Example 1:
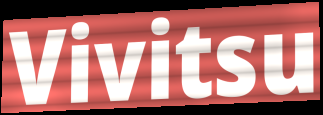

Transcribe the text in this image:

Vivitsu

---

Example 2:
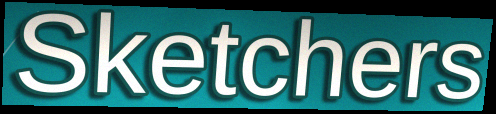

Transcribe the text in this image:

Sketchers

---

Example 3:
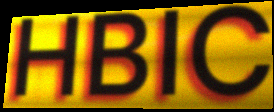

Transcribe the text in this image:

HBIC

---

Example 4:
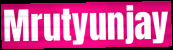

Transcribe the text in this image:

Mrutyunjay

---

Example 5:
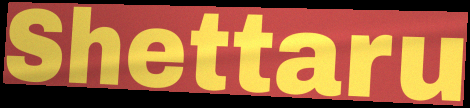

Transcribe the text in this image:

Shettaru